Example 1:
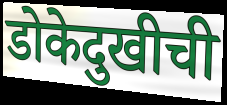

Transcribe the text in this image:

डोकेदुखीची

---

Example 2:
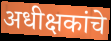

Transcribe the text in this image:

अधीक्षकांचे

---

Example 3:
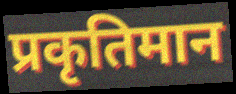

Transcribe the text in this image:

प्रकृतिमान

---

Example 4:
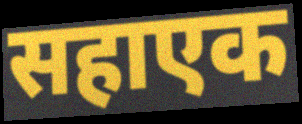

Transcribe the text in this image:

सहाएक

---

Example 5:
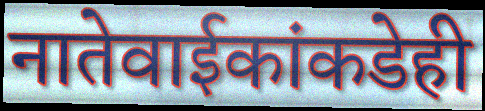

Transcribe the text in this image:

नातेवाईकांकडेही